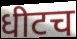
धीटच